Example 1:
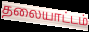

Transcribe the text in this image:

தலையாட்டம்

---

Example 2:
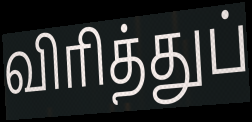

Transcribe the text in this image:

விரித்துப்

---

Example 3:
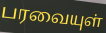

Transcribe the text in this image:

பரவையுள்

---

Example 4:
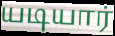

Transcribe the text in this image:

யடியார்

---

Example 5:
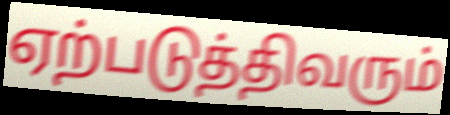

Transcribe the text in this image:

ஏற்படுத்திவரும்